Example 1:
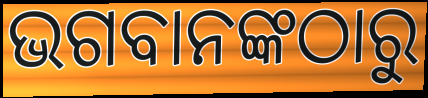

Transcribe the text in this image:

ଭଗବାନଙ୍କଠାରୁ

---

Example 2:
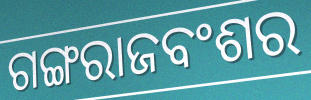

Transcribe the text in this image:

ଗଙ୍ଗରାଜବଂଶର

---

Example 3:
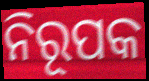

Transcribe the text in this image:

ନିରୂପକ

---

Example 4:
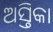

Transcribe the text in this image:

ଅସ୍ତିକା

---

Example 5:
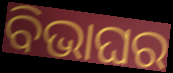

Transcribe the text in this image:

ବିଭାଘର